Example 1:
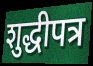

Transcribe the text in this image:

शुद्धीपत्र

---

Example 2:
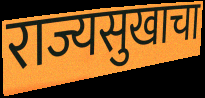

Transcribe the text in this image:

राज्यसुखाचा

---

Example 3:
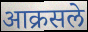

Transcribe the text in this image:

आक्रसले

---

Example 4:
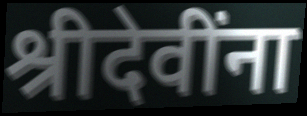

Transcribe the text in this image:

श्रीदेवींना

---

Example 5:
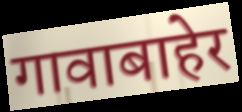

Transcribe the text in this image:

गावाबाहेर